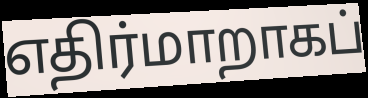
எதிர்மாறாகப்